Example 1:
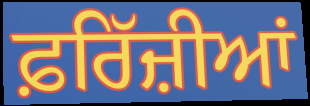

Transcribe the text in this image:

ਫ਼ਰਿੱਜ਼ੀਆਂ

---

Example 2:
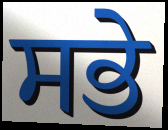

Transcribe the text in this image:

ਸਭੇ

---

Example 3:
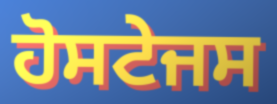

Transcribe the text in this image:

ਹੋਸਟੇਜਸ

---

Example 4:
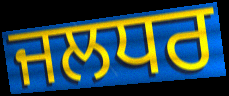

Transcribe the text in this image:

ਜਲਧਰ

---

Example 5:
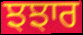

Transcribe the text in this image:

ਝਝਾਰ